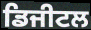
ਡਿਜੀਟਲ